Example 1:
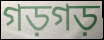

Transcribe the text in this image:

গড়গড়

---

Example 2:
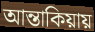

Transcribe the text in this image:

আন্তাকিয়ায়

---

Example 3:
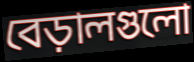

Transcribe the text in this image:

বেড়ালগুলো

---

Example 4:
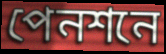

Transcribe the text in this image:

পেনশনে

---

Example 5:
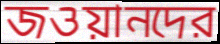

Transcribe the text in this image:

জওয়ানদের